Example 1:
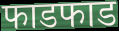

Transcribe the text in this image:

फाडफाड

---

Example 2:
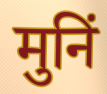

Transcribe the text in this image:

मुनिं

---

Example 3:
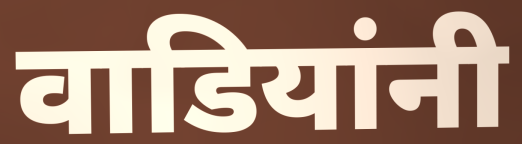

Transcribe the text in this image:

वाडियांनी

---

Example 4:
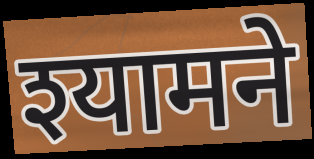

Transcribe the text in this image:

श्यामने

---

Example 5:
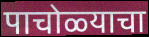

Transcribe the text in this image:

पाचोळ्याचा